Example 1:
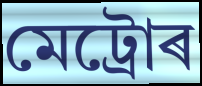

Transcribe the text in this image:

মেট্ৰোৰ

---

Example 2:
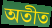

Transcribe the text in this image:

অতীত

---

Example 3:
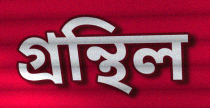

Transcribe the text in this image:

গ্ৰন্থিল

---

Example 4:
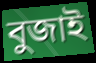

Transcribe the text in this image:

বুজাই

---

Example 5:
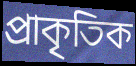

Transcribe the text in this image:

প্ৰাকৃতিক